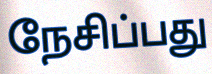
நேசிப்பது